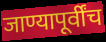
जाण्यापूर्वींच